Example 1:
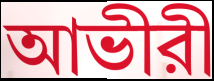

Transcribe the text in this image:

আভীরী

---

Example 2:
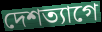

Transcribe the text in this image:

দেশত্যাগে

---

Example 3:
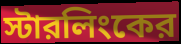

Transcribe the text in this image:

স্টারলিংকের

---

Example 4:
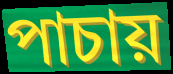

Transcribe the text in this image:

পাচায়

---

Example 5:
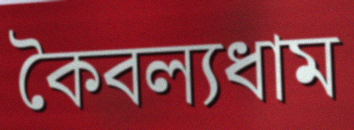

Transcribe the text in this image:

কৈবল্যধাম